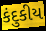
કંદુકીય